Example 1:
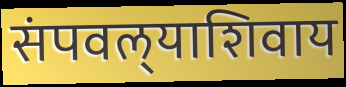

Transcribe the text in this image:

संपवल्याशिवाय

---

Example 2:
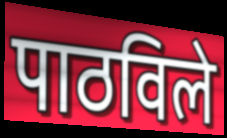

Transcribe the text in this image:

पाठविले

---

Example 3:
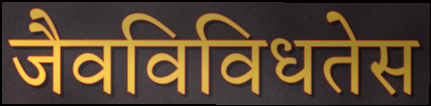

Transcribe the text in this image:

जैवविविधतेस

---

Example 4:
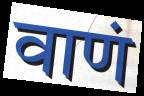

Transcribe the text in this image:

वाणं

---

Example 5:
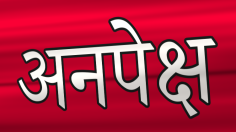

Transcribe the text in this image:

अनपेक्ष